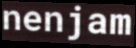
nenjam